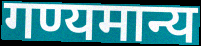
गण्यमान्य